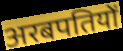
अरबपतियों